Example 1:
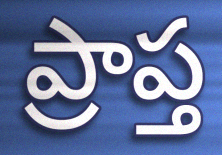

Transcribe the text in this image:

ప్రాప్త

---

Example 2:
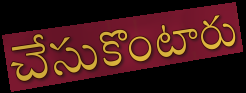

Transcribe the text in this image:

చేసుకొంటారు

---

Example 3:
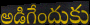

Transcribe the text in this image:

అడిగేందుకు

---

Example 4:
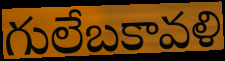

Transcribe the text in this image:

గులేబకావళి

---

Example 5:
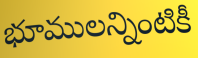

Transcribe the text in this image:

భూములన్నింటికీ